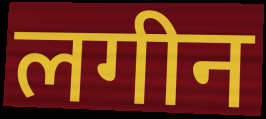
लगीन